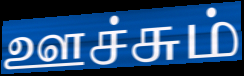
ஊச்சும்